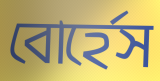
বোর্হেস